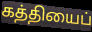
கத்தியைப்